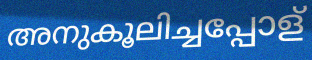
അനുകൂലിച്ചപ്പോള്